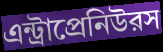
এন্ট্রাপ্রেনিউরস